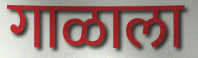
गाळाला